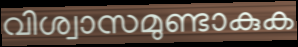
വിശ്വാസമുണ്ടാകുക